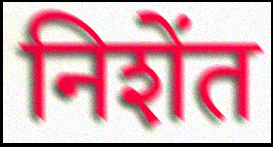
निशेंत